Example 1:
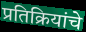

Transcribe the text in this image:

प्रतिक्रियांचे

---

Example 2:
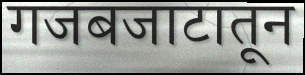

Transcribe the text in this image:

गजबजाटातून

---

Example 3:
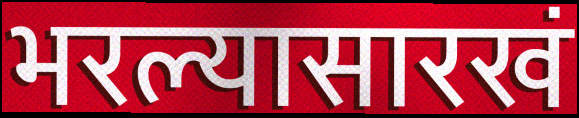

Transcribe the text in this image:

भरल्यासारखं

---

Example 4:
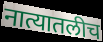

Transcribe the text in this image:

नात्यातलीच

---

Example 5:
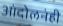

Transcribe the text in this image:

आंदोलनंही